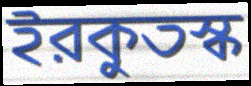
ইরকুতস্ক